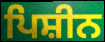
ਪਿਸ਼ੀਨ